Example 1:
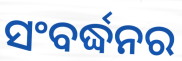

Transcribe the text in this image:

ସଂବର୍ଦ୍ଧନର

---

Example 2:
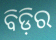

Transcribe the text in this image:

ବିଡ଼ିର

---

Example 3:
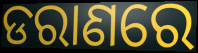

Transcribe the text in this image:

ଡରାଣରେ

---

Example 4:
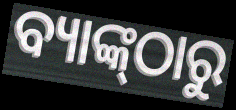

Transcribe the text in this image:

ବ୍ୟାଙ୍କ୍‌ଠାରୁ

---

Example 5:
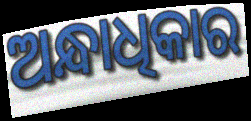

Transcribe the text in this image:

ଅନ୍ଧାଧିକାର